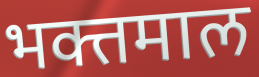
भक्तमाल